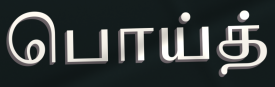
பொய்த்